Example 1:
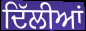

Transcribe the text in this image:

ਦਿੱਲੀਆਂ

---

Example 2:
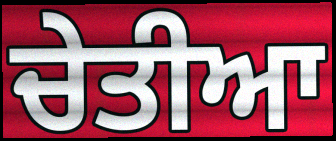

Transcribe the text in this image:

ਚੇਤੀਆ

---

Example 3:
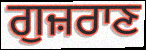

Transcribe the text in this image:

ਗੁਜ਼ਰਾਣ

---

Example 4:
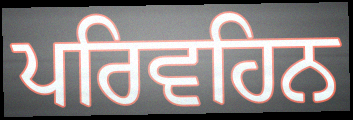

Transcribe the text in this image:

ਪਰਿਵਹਿਨ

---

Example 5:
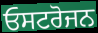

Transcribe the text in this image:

ਓਸਟਰੋਜਨ